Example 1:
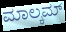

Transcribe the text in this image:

ಮಾಲ್ಕಮ್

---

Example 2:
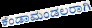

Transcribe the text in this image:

ಕೆಂಡಾಮಂಡಲರಾಗಿ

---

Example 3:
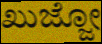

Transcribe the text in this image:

ಖುಜ್ಜೋ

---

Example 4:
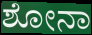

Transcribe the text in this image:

ಶೋನಾ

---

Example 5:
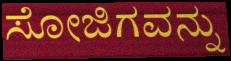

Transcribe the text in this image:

ಸೋಜಿಗವನ್ನು